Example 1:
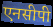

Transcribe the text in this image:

एनसीपी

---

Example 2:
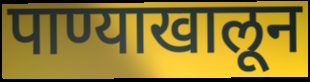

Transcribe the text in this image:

पाण्याखालून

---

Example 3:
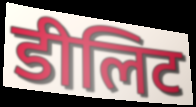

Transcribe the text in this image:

डीलिट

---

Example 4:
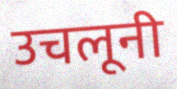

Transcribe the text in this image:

उचलूनी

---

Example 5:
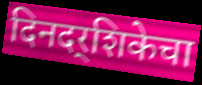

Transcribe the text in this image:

दिनदर्शिकेचा